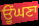
ਊਂਘਣਾ